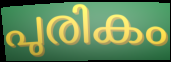
പുരികം